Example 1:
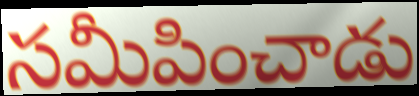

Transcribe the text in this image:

సమీపించాడు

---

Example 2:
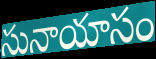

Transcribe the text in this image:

సునాయాసం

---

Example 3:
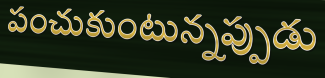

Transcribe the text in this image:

పంచుకుంటున్నప్పుడు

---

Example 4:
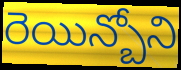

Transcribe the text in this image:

రెయిన్బోని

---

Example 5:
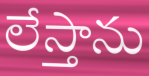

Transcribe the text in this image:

లేస్తాను